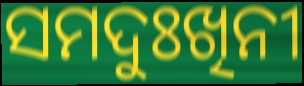
ସମଦୁଃଖିନୀ